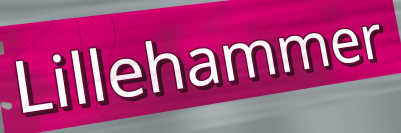
Lillehammer